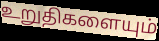
உறுதிகளையும்